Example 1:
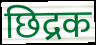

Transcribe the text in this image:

छिद्रक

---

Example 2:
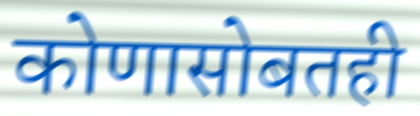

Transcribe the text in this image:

कोणासोबतही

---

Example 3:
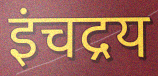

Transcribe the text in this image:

इंचद्रय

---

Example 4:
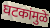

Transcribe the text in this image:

घटकांमुळे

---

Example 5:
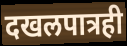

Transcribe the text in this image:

दखलपात्रही